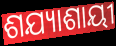
ଶଯ୍ୟାଶାୟୀ